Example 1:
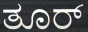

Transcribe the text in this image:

ತೂರ್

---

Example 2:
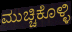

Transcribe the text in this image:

ಮುಚ್ಚಿಕೊಳ್ಳಿ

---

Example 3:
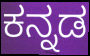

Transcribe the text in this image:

ಕನ್ನಡ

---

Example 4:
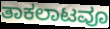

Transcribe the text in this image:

ತಾಕಲಾಟವೂ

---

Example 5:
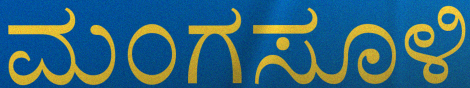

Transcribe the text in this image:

ಮಂಗಸೂಳಿ